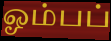
ஓம்பப்